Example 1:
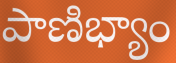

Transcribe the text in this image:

పాణిభ్యాం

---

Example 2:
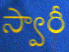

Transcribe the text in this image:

స్వారీ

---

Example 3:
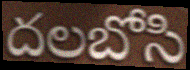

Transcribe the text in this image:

దలబోసి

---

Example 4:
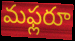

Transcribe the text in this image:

మఫ్లరూ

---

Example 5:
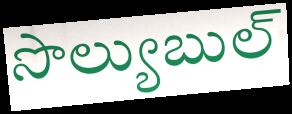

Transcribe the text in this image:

సొల్యుబుల్